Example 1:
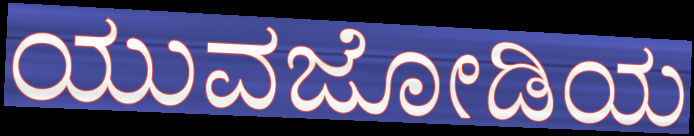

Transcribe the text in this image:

ಯುವಜೋಡಿಯ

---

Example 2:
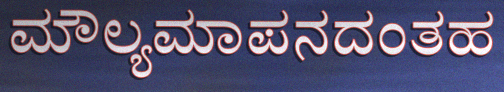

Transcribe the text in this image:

ಮೌಲ್ಯಮಾಪನದಂತಹ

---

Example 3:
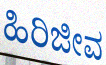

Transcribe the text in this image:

ಹಿರಿಜೀವ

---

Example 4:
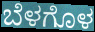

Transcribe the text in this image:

ಬೆಳಗೊಳ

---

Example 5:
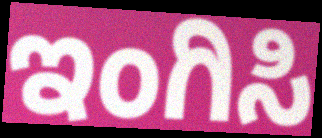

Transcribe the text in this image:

ಇಂಗಿಸಿ